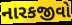
નારકજીવો